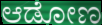
ಆಡೋಣ